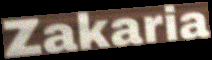
Zakaria